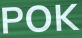
POK